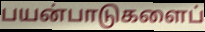
பயன்பாடுகளைப்